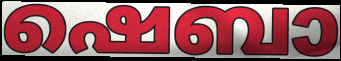
ഷെബാ